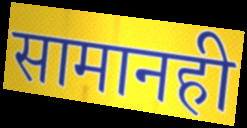
सामानही